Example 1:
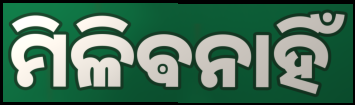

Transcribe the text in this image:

ମିଳିଵନାହିଁ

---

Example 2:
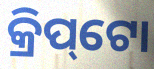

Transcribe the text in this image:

କ୍ରିପ୍‌ଟୋ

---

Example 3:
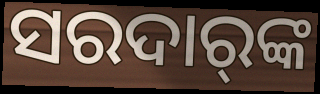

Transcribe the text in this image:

ସରଦାର୍‍ଙ୍କ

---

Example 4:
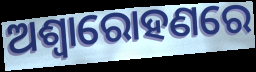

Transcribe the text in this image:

ଅଶ୍ଵାରୋହଣରେ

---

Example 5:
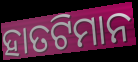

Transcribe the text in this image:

ହାତଟିମାନ